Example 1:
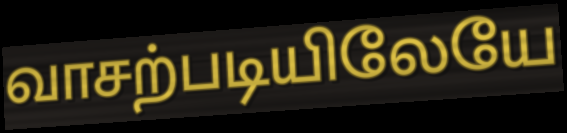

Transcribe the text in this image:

வாசற்படியிலேயே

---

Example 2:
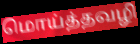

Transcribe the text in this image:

மொய்த்தவழி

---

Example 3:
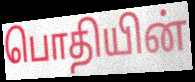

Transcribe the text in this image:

பொதியின்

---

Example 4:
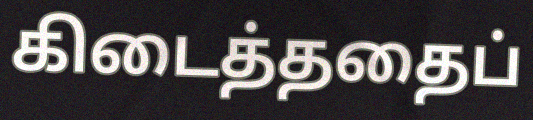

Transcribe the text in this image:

கிடைத்ததைப்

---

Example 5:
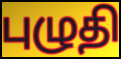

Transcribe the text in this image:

புழுதி